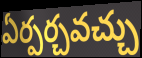
ఏర్పర్చవచ్చు